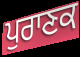
ਪੁਰਾਣਕ